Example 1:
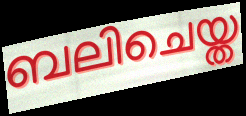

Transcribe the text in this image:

ബലിചെയ്ത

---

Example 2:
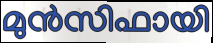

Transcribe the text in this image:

മുൻസിഫായി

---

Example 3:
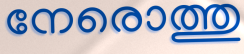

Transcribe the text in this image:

നേരൊത്തു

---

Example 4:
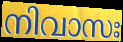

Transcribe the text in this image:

നിവാസഃ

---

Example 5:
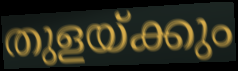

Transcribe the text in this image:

തുളയ്ക്കും